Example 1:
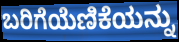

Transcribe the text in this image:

ಬರಿಗೆಯೆಣಿಕೆಯನ್ನು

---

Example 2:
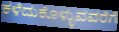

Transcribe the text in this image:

ಕಳೆದುಕೊಳ್ಳುವವರೆಗೆ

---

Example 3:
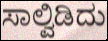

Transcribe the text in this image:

ಸಾಲ್ವಿಡಿದು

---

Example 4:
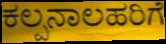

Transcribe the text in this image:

ಕಲ್ಪನಾಲಹರಿಗೆ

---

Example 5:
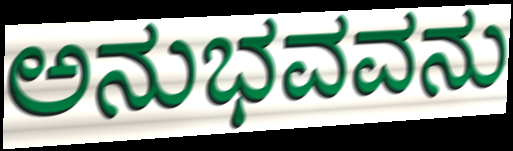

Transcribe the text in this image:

ಅನುಭವವನು